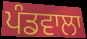
ਪੰਡਵਾਲਾ